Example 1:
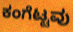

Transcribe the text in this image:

ಕಂಗೆಟ್ಟವು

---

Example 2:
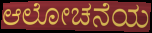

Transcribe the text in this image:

ಆಲೋಚನೆಯ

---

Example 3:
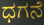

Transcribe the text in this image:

ಧಗನೆ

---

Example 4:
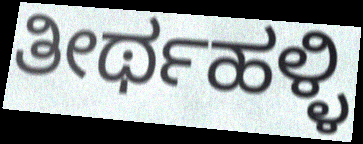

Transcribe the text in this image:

ತೀರ್ಥಹಳ್ಳಿ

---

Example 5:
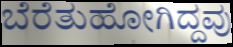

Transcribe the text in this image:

ಬೆರೆತುಹೋಗಿದ್ದವು